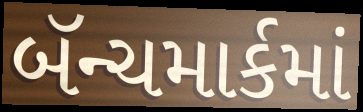
બૅન્ચમાર્કમાં